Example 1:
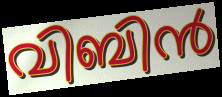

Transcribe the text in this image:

വിബിൻ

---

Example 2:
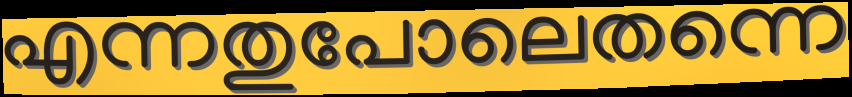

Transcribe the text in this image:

എന്നതുപോലെതന്നെ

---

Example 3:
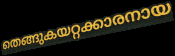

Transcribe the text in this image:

തെങ്ങുകയറ്റക്കാരനായ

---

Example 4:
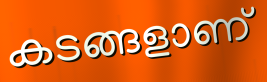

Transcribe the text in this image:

കടങ്ങളാണ്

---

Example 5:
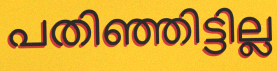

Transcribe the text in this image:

പതിഞ്ഞിട്ടില്ല